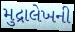
મુદ્રાલેખની